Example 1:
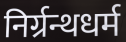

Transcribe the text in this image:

निर्ग्रन्थधर्म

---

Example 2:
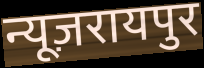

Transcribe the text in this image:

न्यूज़रायपुर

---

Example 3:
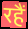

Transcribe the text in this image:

रहैं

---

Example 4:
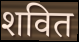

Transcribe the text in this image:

शवित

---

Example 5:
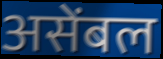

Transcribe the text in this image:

असेंबल